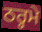
ਠਰ੍ਹਮੇ